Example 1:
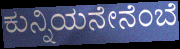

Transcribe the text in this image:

ಕುನ್ನಿಯನೇನೆಂಬೆ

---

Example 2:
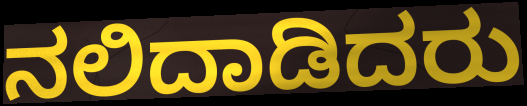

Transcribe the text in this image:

ನಲಿದಾಡಿದರು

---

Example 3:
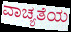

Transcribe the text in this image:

ವಾಚ್ಯತೆಯ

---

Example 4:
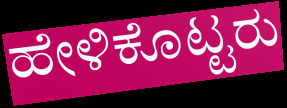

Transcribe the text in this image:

ಹೇಳಿಕೊಟ್ಟರು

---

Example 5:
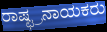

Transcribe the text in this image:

ರಾಷ್ಟ್ರನಾಯಕರು